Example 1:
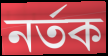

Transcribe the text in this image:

নৰ্তক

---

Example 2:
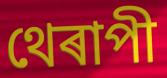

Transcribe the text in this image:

থেৰাপী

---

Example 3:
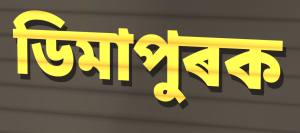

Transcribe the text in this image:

ডিমাপুৰক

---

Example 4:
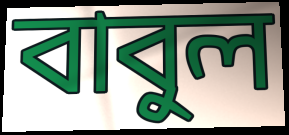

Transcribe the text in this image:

বাবুল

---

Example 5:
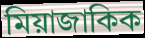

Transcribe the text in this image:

মিয়াজাকিক